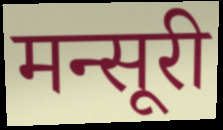
मन्सूरी